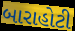
બારાહોટી